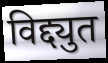
विद्द्युत